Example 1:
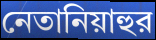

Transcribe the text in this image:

নেতানিয়াহুর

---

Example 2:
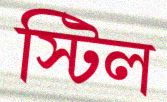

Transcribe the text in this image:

স্টিল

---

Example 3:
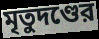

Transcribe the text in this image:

মৃতুদণ্ডের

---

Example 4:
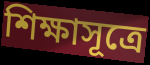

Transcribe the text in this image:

শিক্ষাসূত্রে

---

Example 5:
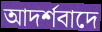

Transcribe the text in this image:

আদর্শবাদে